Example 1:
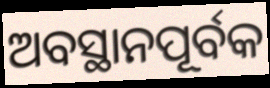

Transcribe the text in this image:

ଅବସ୍ଥାନପୂର୍ବକ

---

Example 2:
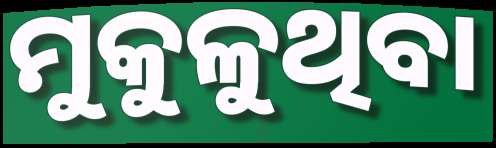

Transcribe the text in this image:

ମୁକୁଳୁଥିବା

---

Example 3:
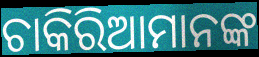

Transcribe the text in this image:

ଚାକିରିଆମାନଙ୍କ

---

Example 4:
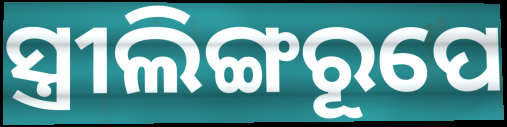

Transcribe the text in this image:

ସ୍ତ୍ରୀଲିଙ୍ଗରୂପେ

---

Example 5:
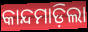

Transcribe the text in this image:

କାନ୍ଦମାଡ଼ିଲା